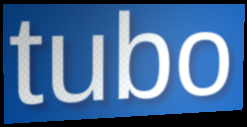
tubo